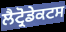
ਲੈਟ੍ਰੋਡੇਕਟਸ